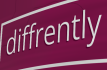
diffrently